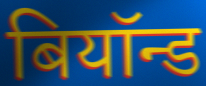
बियॉन्ड